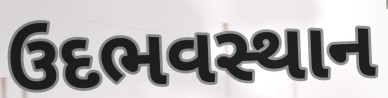
ઉદભવસ્થાન